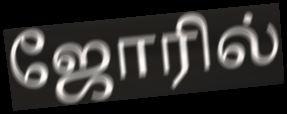
ஜோரில்